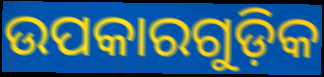
ଉପକାରଗୁଡ଼ିକ